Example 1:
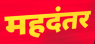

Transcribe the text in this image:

महदंतर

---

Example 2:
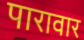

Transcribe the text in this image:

पारावार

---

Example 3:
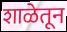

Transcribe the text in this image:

शाळेतून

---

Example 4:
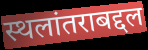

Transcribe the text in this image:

स्थलांतराबद्दल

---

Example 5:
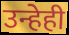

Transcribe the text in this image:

उन्हेही